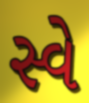
સ્વે